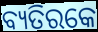
ବ୍ୟତିରକେ